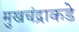
मुखचंद्राकडे